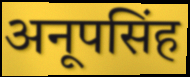
अनूपसिंह